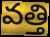
వత్తి